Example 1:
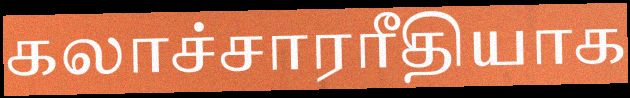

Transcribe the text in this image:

கலாச்சாரரீதியாக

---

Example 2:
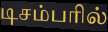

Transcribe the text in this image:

டிசம்பரில்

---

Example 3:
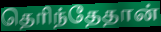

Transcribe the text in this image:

தெரிந்தேதான்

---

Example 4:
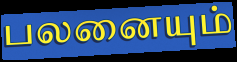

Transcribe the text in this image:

பலனையும்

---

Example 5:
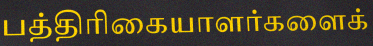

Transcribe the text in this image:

பத்திரிகையாளர்களைக்